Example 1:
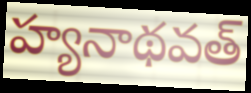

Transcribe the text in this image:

హ్యనాథవత్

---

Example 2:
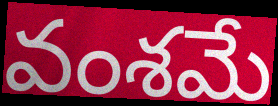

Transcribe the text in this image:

వంశమే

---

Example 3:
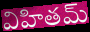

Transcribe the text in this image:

విహితమ్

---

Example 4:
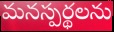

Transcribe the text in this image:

మనస్పర్థలను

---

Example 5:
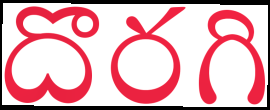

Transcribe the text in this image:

దొరగి